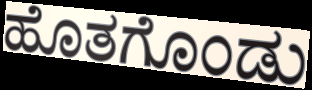
ಹೊತಗೊಂಡು